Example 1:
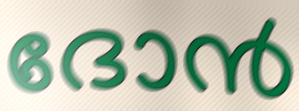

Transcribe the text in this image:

ദോൻ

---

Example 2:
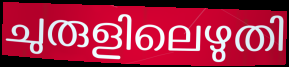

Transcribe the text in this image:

ചുരുളിലെഴുതി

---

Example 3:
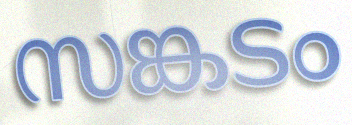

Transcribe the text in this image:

സങ്കടം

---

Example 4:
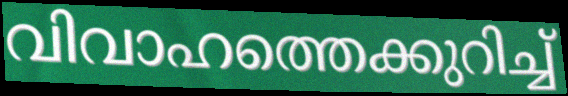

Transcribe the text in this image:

വിവാഹത്തെക്കുറിച്ച്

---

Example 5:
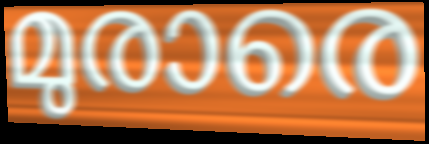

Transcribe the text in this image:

മുരാരെ